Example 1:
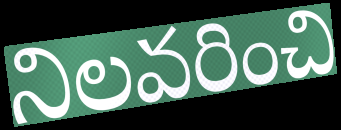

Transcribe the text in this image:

నిలవరించి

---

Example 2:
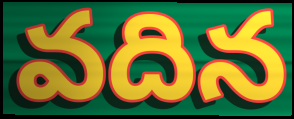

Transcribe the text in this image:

వదిన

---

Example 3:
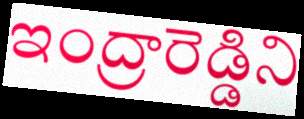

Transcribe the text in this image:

ఇంద్రారెడ్డిని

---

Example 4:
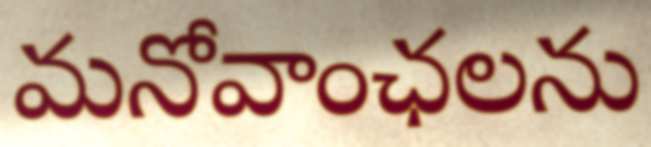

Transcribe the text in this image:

మనోవాంఛలను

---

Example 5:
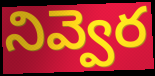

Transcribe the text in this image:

నివ్వెర